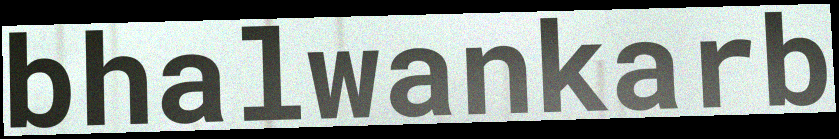
bhalwankarb